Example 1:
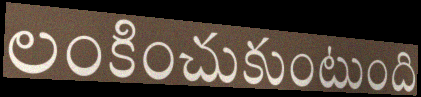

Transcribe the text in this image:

లంకించుకుంటుంది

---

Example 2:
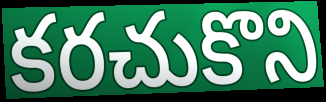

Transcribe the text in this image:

కరచుకొని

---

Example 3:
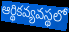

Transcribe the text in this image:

ఆర్థికవ్యవస్థలో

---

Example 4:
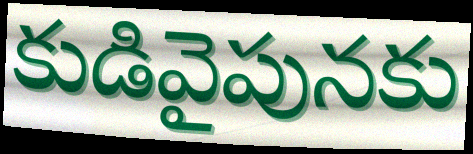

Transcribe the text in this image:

కుడివైపునకు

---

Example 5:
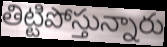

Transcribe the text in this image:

తిట్టిపోస్తున్నారు